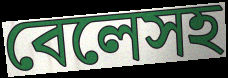
বেলেসহ